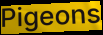
Pigeons